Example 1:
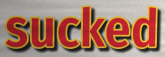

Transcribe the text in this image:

sucked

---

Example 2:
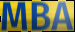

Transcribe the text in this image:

MBA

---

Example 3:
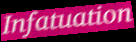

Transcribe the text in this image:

Infatuation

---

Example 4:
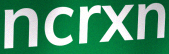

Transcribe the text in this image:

ncrxn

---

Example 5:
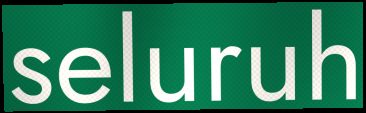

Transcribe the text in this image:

seluruh